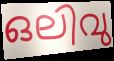
ഒലിവു